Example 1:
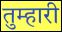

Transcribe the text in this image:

तुम्हारी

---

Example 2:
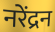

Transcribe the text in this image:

नरेंद्रन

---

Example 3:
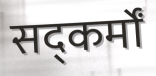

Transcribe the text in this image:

सद्कर्मों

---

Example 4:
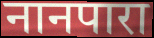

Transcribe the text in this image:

नानपारा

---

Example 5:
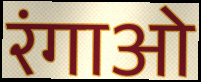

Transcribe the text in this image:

रंगाओ